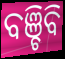
ବଞ୍ଚିବି